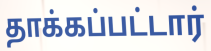
தாக்கப்பட்டார்